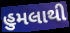
હુમલાથી